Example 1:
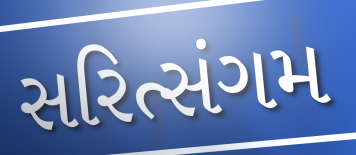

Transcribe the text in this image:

સરિત્સંગમ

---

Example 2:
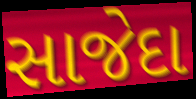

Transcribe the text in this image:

સાજેદા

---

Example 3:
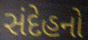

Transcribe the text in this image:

સંદેહનો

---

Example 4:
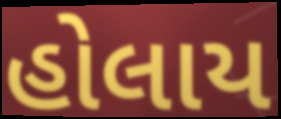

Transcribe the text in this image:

હોલાય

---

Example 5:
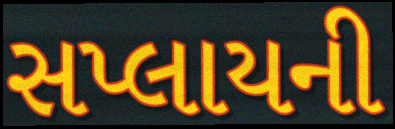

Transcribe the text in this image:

સપ્લાયની